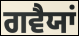
ਗਵੈਯਾਂ